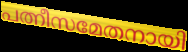
പത്നീസമേതനായി